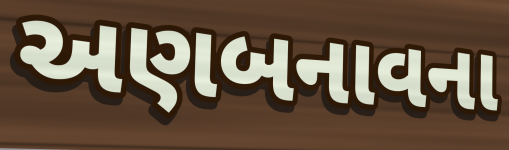
અણબનાવના